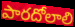
పారదోలాలి